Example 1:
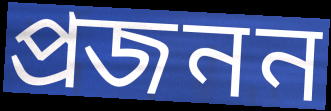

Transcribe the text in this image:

প্রজনন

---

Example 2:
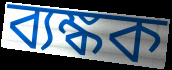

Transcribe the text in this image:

ব্যঙ্কক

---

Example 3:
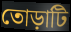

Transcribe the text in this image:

তোড়াটি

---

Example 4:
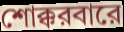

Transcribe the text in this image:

শোক্করবারে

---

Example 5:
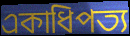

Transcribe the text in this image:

একাধিপত্য